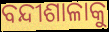
ବନ୍ଦୀଶାଳାକୁ